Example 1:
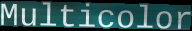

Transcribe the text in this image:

Multicolor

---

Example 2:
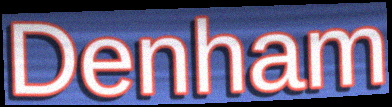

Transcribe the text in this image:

Denham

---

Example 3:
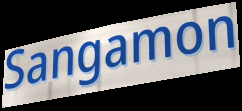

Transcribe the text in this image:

Sangamon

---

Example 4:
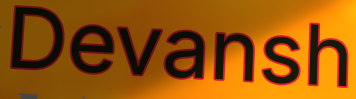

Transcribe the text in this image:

Devansh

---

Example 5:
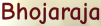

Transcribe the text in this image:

Bhojaraja